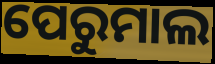
ପେରୁମାଲ